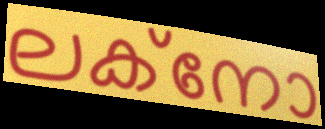
ലക്നോ